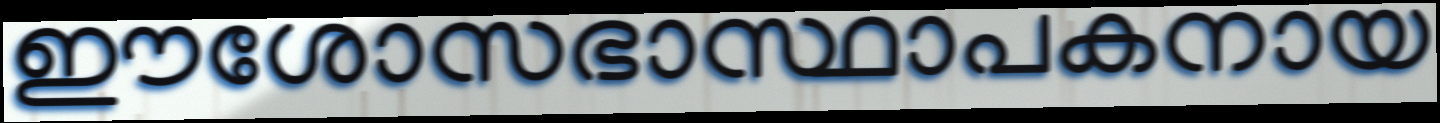
ഈശോസഭാസ്ഥാപകനായ